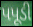
પપૂડી